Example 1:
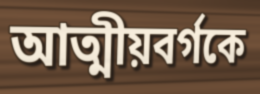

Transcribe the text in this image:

আত্মীয়বর্গকে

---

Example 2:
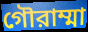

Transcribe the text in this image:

গৌরাম্মা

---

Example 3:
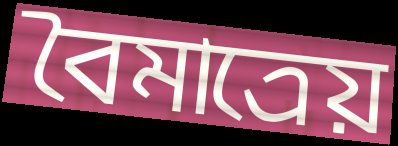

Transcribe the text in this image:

বৈমাত্রেয়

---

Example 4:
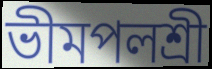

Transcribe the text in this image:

ভীমপলশ্রী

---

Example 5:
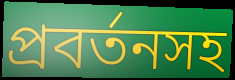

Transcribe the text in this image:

প্রবর্তনসহ